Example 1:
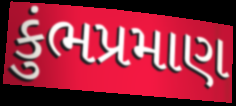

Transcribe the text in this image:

કુંભપ્રમાણ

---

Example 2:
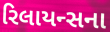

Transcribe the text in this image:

રિલાયન્સના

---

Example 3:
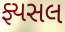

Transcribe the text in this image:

ફ્યસલ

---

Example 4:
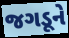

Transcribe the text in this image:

જગડૂને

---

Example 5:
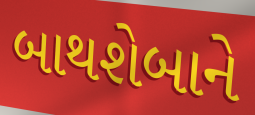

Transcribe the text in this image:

બાથશેબાને